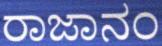
ರಾಜಾನಂ